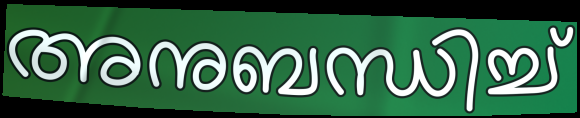
അനുബന്ധിച്ച്